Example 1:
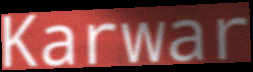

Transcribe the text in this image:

Karwar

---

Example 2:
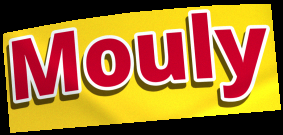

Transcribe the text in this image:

Mouly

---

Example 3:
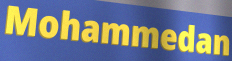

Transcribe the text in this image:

Mohammedan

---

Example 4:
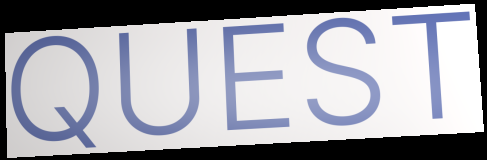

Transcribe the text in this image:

QUEST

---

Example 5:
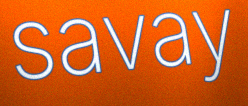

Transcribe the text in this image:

savay